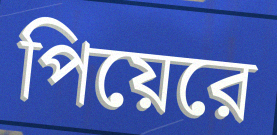
পিয়েরে